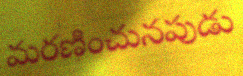
మరణించునపుడు